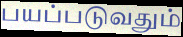
பயப்படுவதும்